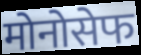
मोनोसेफ